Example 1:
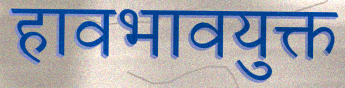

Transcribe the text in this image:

हावभावयुक्त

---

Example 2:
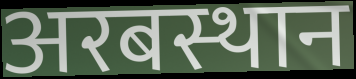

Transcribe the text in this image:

अरबस्थान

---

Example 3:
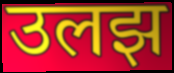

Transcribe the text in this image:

उलझ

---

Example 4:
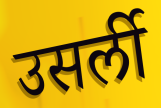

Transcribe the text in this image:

उसर्ली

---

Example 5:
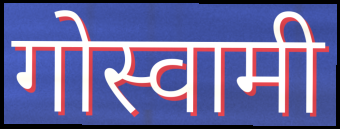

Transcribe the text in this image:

गोस्वामी